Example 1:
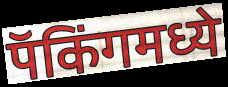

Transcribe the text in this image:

पॅकिंगमध्ये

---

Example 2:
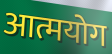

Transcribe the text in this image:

आत्मयोग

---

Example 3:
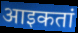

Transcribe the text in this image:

आइकतां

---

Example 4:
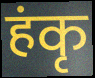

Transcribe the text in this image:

हंकृ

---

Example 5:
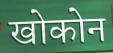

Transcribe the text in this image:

खोकोन